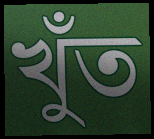
খুঁত